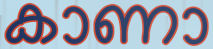
കാണാ